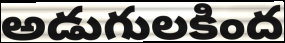
అడుగులకింద